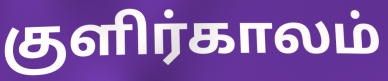
குளிர்காலம்